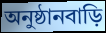
অনুষ্ঠানবাড়ি